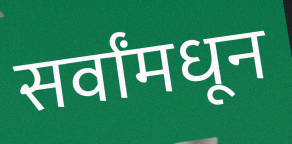
सर्वांमधून